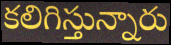
కలిగిస్తున్నారు